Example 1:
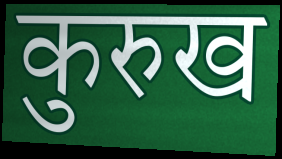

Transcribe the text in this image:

कुरुख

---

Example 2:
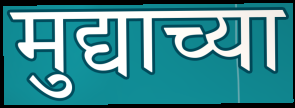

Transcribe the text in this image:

मुद्याच्या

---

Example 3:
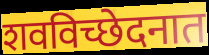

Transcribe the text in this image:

शवविच्छेदनात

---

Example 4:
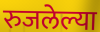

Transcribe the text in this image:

रुजलेल्या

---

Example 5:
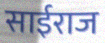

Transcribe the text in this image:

साईराज